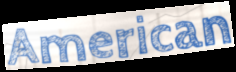
American